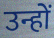
उन्हों